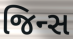
જિન્સ